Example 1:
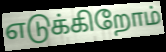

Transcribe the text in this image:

எடுக்கிறோம்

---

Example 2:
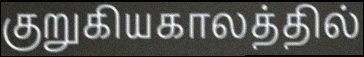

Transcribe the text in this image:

குறுகியகாலத்தில்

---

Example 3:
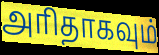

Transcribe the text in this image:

அரிதாகவும்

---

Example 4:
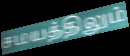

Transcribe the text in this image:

சமயத்திலும்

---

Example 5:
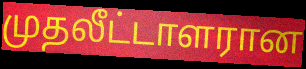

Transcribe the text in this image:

முதலீட்டாளரான